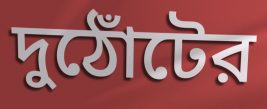
দুঠোঁটের